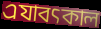
এযাবৎকাল